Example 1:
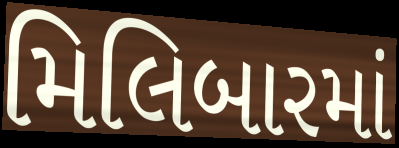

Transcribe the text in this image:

મિલિબારમાં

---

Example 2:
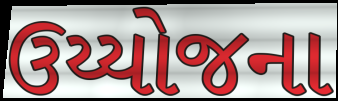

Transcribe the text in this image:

ઉય્યોજના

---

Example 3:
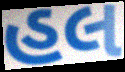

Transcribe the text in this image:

હલ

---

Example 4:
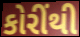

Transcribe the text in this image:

કોરીંથી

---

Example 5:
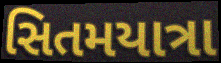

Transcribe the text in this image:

સિતમયાત્રા